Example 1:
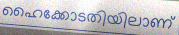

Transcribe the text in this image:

ഹൈക്കോടതിയിലാണ്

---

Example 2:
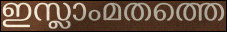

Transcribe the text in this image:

ഇസ്ലാംമതത്തെ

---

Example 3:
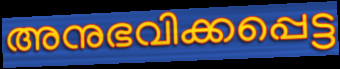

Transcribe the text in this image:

അനുഭവിക്കപ്പെട്ട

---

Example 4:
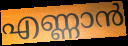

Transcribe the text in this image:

എണ്ണാൻ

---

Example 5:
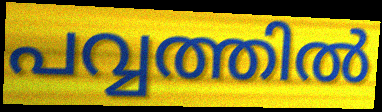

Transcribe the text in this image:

പവ്വത്തിൽ